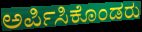
ಅರ್ಪಿಸಿಕೊಂಡರು